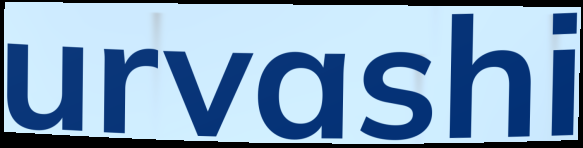
urvashi